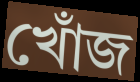
খোঁজ